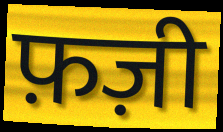
फ़ज़ी